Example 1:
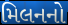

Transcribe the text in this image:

મિલનનો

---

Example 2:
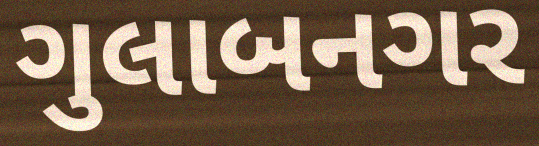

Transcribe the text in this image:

ગુલાબનગર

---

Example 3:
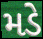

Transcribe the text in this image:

મડે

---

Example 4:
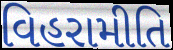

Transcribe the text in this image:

વિહરામીતિ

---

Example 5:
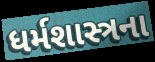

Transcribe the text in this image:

ધર્મશાસ્ત્રના